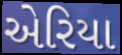
એરિયા